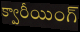
క్వారీయింగ్